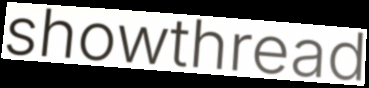
showthread